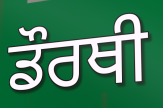
ਡੌਰਥੀ